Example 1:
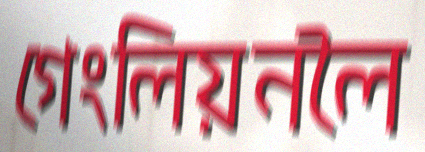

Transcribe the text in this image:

গেংলিয়নলৈ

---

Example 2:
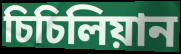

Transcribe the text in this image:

চিচিলিয়ান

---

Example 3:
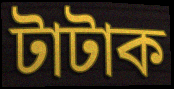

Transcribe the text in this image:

টাটাক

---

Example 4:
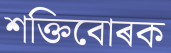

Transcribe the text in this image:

শক্তিবোৰক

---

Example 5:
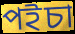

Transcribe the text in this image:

পইচা